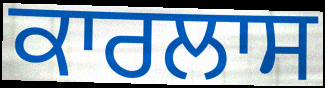
ਕਾਰਲਾਸ